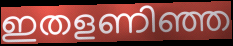
ഇതളണിഞ്ഞ